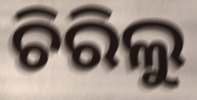
ଚିରିଲୁ